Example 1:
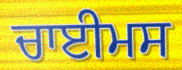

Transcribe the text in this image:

ਚਾਈਮਸ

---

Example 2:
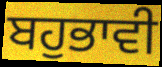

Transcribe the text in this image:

ਬਹੁਭਾਵੀ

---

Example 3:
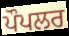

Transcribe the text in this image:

ਪੌਪਲਰ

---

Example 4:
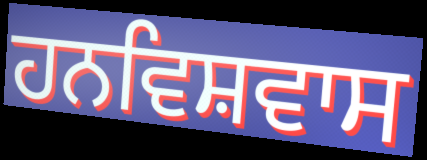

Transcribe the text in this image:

ਹਨਵਿਸ਼ਵਾਸ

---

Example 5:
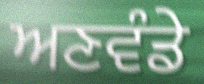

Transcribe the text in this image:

ਅਣਵੰਡੇ